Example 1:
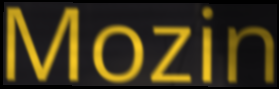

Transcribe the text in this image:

Mozin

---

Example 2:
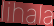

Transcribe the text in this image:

lihala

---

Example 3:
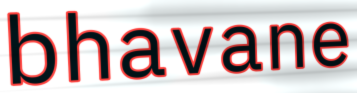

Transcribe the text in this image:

bhavane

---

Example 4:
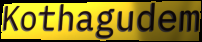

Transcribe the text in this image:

Kothagudem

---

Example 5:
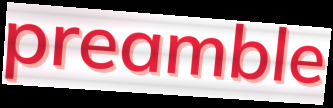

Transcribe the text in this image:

preamble